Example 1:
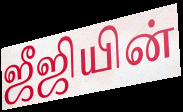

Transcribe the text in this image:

ஜீஜியின்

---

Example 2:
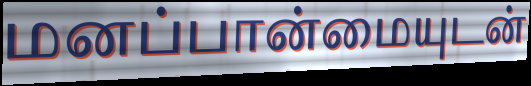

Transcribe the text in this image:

மனப்பான்மையுடன்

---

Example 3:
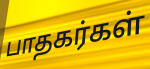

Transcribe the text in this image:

பாதகர்கள்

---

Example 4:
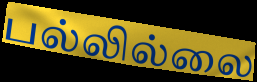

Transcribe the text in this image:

பல்லில்லை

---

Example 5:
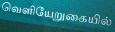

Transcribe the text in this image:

வெளியேறுகையில்